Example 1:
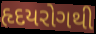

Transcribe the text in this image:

હૃદયરોગથી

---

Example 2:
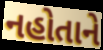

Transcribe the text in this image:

નહોતાને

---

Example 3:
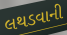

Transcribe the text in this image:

લથડવાની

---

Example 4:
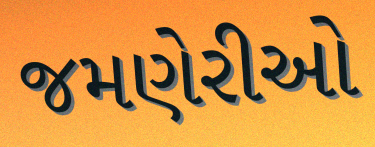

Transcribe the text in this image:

જમણેરીઓ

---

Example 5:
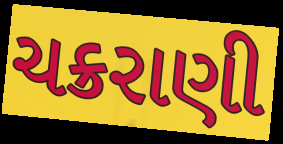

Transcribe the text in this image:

ચક્રરાણી